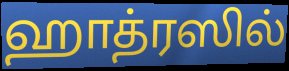
ஹாத்ரஸில்